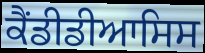
ਕੈਂਡੀਡੀਆਸਿਸ